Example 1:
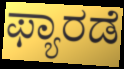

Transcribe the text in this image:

ಫ್ಯಾರಡೆ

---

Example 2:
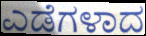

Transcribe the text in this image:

ಎಡೆಗಳಾದ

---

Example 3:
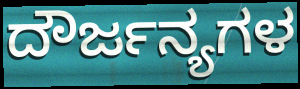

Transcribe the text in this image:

ದೌರ್ಜನ್ಯಗಳ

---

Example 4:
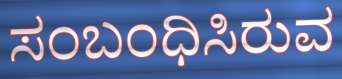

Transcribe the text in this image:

ಸಂಬಂಧಿಸಿರುವ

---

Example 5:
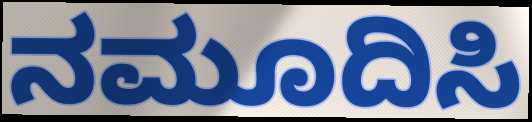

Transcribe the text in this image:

ನಮೂದಿಸಿ